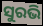
ସୁରଭି